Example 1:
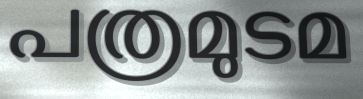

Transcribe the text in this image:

പത്രമുടമ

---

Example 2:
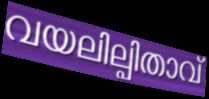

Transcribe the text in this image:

വയലില്പിതാവ്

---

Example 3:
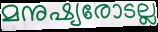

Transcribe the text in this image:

മനുഷ്യരോടല്ല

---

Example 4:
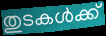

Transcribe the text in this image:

തുടകൾക്ക്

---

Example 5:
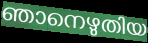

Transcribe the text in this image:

ഞാനെഴുതിയ